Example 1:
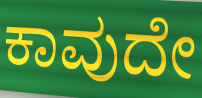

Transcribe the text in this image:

ಕಾವುದೇ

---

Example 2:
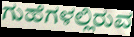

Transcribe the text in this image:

ಗುಹೆಗಳಲ್ಲಿರುವ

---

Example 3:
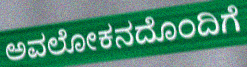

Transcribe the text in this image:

ಅವಲೋಕನದೊಂದಿಗೆ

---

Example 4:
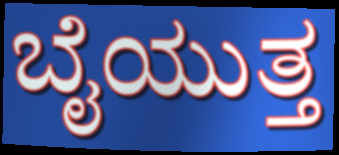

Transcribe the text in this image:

ಬೈಯುತ್ತ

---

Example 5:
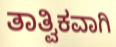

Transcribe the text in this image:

ತಾತ್ವಿಕವಾಗಿ